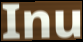
Inu